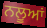
ਨਲੂਆਂ